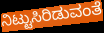
ನಿಟ್ಟುಸಿರಿಡುವಂತೆ